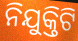
ନିଯୁକ୍ତିଟି